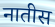
नातीस